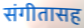
संगीतासह